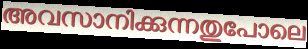
അവസാനിക്കുന്നതുപോലെ